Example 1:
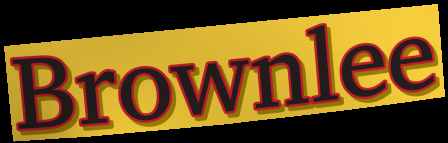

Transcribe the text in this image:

Brownlee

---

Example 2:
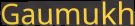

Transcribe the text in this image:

Gaumukh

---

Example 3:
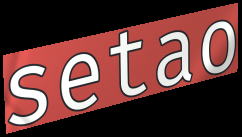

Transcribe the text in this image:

setao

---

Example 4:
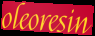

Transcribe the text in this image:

oleoresin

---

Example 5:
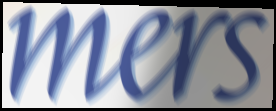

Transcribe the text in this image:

mers